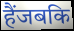
हैंजबकि